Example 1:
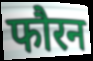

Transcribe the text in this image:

फौरन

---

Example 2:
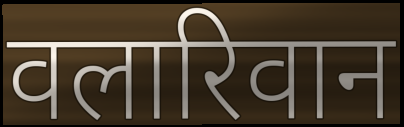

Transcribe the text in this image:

वलारिवान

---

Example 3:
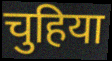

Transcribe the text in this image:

चुहिया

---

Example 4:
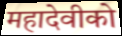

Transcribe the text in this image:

महादेवीको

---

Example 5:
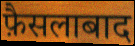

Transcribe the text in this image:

फ़ैसलाबाद